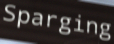
Sparging